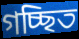
গচ্ছিত